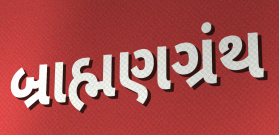
બ્રાહ્મણગ્રંથ